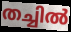
തച്ചിൽ